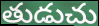
తుడుచు